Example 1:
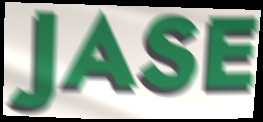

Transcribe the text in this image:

JASE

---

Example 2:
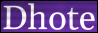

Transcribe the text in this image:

Dhote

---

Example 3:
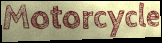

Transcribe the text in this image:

Motorcycle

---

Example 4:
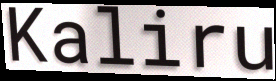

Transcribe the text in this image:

Kaliru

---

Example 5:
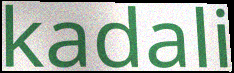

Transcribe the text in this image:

kadali